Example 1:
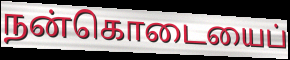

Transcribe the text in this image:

நன்கொடையைப்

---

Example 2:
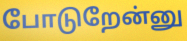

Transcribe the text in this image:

போடுறேன்னு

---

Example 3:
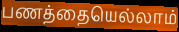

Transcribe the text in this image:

பணத்தையெல்லாம்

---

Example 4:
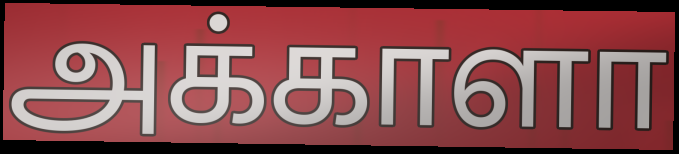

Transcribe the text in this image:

அக்காளா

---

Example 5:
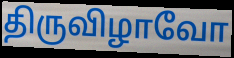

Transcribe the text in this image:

திருவிழாவோ